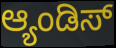
ಆ್ಯಂಡಿಸ್